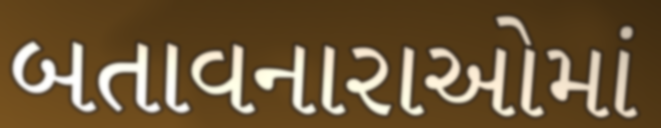
બતાવનારાઓમાં